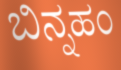
ಬಿನ್ನಹಂ